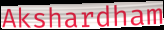
Akshardham